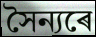
সৈন্যৰে